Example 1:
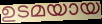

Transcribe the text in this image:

ഉടമയായ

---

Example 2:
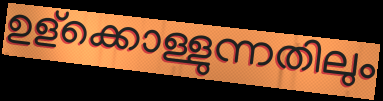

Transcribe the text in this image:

ഉള്ക്കൊള്ളുന്നതിലും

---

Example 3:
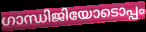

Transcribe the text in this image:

ഗാന്ധിജിയോടൊപ്പം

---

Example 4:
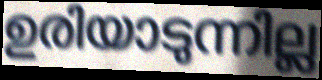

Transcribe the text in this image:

ഉരിയാടുന്നില്ല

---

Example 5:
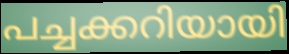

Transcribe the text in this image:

പച്ചക്കറിയായി